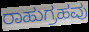
ರಾಹುಗ್ರಹವು